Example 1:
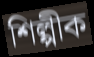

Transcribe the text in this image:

শিল্পীক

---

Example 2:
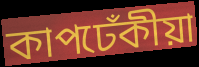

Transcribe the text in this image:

কাপঢেঁকীয়া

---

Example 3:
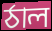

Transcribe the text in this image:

ঠাল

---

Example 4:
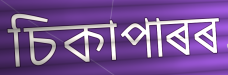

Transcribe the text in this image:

চিকাপাৰৰ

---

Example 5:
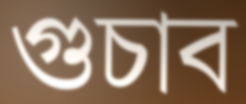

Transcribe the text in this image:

গুচাব